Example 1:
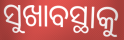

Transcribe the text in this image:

ସୁଖାବସ୍ଥାକୁ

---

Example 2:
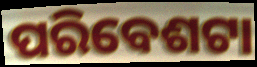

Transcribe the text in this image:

ପରିବେଶଟା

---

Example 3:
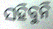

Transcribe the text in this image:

ସହିବୁନି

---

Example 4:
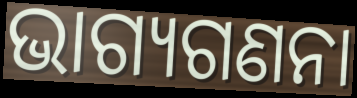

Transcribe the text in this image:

ଭାଗ୍ୟଗଣନା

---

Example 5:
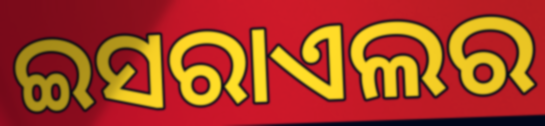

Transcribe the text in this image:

ଇସରାଏଲର